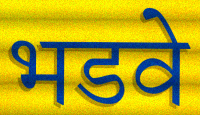
भडवे